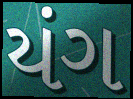
યંગ